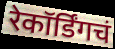
रेकॉर्डिंगचं